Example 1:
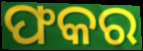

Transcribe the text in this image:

ଫକର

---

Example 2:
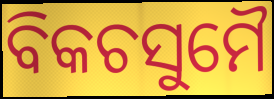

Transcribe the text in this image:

ବିକଚସୁମୈ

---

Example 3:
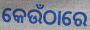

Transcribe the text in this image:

କେଉଁଠାରେ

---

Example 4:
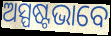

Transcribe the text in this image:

ଅସ୍ପଷ୍ଟଭାବେ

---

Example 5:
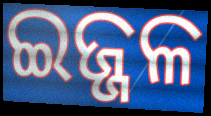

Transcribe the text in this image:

ଇଜ୍ଜଳ